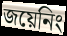
জয়েনিং